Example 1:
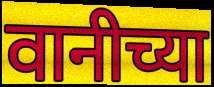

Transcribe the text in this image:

वानीच्या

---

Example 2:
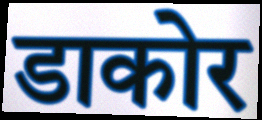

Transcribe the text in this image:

डाकोर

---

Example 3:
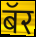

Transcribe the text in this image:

बॅर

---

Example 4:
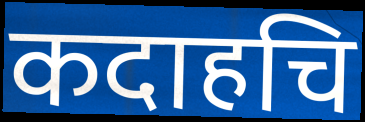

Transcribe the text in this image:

कदाहचि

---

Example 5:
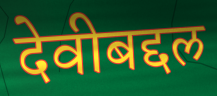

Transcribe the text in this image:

देवीबद्दल